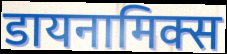
डायनामिक्स